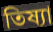
তিষ্যা